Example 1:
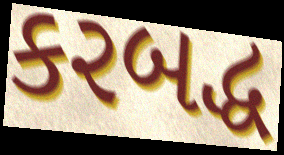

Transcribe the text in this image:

કરબદ્ધ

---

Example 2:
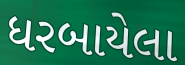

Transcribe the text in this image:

ધરબાયેલા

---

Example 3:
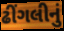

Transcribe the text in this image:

ઢીંગલીનું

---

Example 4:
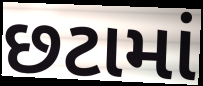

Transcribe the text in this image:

છટામાં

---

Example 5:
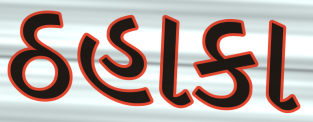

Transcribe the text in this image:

ઠહાકા